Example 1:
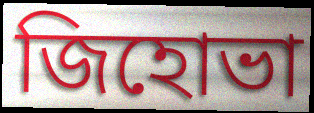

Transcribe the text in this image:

জিহোভা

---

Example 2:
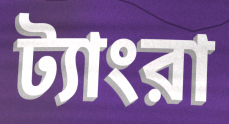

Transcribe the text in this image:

ট্যাংরা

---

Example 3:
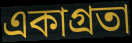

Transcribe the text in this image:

একাগ্রতা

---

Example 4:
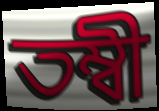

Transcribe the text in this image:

তম্বী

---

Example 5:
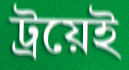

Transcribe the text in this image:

ট্রয়েই